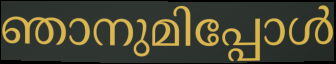
ഞാനുമിപ്പോൾ